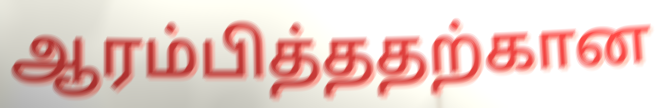
ஆரம்பித்ததற்கான